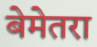
बेमेतरा